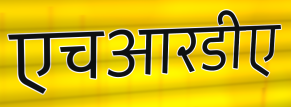
एचआरडीए